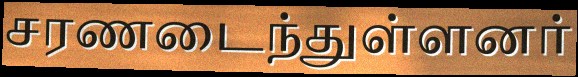
சரணடைந்துள்ளனர்